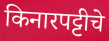
किनारपट्टीचे